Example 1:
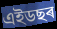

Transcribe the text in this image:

এইডছৰ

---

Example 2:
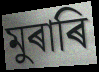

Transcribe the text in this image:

মুৰাৰি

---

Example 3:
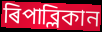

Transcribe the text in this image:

ৰিপাব্লিকান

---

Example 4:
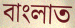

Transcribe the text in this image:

বাংলাত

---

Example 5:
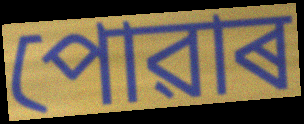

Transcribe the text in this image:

পোৱাৰ